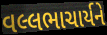
વલ્લભાચાર્યને